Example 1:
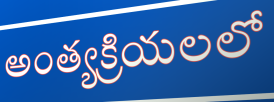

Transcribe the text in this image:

అంత్యక్రియలలో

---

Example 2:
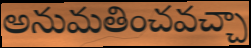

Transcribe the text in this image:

అనుమతించవచ్చా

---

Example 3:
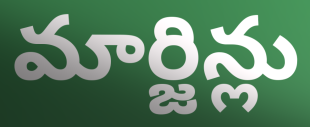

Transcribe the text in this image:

మార్జిన్లు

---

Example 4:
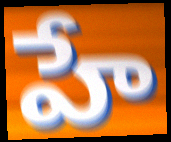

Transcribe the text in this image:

హే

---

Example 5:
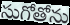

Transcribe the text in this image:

సుగోతోను